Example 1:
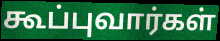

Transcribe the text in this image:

கூப்புவார்கள்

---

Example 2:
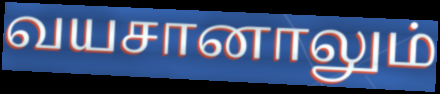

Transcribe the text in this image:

வயசானாலும்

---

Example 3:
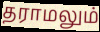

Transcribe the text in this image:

தராமலும்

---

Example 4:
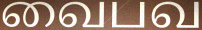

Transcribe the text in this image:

வைபவ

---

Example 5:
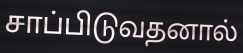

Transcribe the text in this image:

சாப்பிடுவதனால்